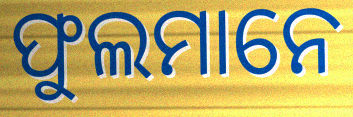
ଫୁଲମାନେ